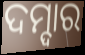
ଦମ୍ଦାର